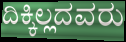
ದಿಕ್ಕಿಲ್ಲದವರು